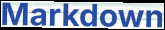
Markdown